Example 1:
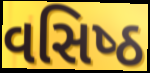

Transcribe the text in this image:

વસિષ્‍ઠ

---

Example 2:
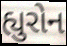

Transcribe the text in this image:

હ્યુરોન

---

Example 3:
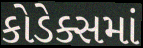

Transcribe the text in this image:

કોડેક્સમાં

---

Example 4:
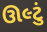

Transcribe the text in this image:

ઊલ્ટું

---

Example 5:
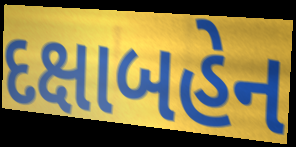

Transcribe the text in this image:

દક્ષાબહેન